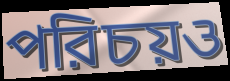
পরিচয়ও